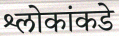
श्लोकांकडे